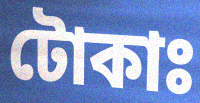
টোকাঃ